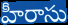
హీరాసు